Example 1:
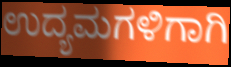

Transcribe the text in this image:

ಉದ್ಯಮಗಳಿಗಾಗಿ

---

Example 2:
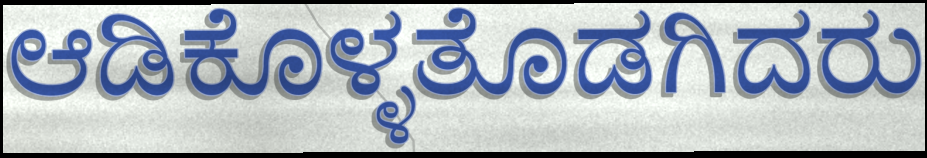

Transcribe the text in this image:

ಆಡಿಕೊಳ್ಳತೊಡಗಿದರು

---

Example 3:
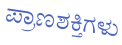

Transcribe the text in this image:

ಪ್ರಾಣಶಕ್ತಿಗಳು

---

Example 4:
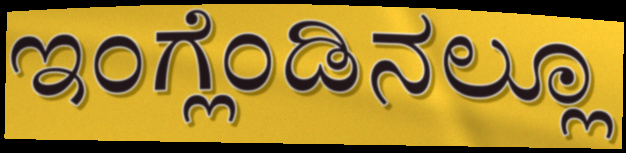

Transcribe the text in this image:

ಇಂಗ್ಲೆಂಡಿನಲ್ಲೂ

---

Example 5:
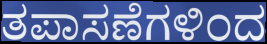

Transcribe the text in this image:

ತಪಾಸಣೆಗಳಿಂದ